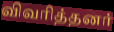
விவரித்தனர்